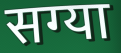
सग्या